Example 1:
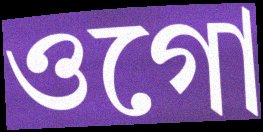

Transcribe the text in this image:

ওগো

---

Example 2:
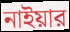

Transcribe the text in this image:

নাইয়ার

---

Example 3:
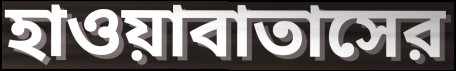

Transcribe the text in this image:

হাওয়াবাতাসের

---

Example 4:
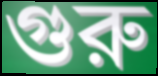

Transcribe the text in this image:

গুরু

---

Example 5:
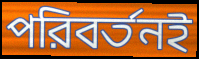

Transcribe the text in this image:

পরিবর্তনই